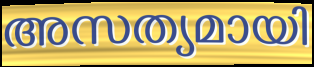
അസത്യമായി